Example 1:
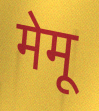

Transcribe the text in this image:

मेमू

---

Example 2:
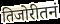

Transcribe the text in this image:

तिजोरीतनं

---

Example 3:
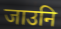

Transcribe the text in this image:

जाउनि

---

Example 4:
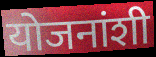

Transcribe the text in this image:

योजनांशी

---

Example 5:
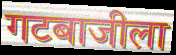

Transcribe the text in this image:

गटबाजीला